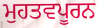
ਮੁਹਤਵਪੂਰਨ